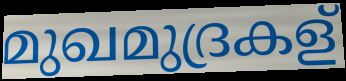
മുഖമുദ്രകള്